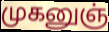
முகனுஞ்